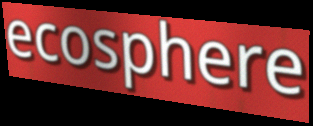
ecosphere